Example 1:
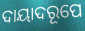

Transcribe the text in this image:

ଦାୟାଦରୂପେ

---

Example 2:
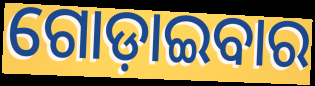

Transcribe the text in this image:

ଗୋଡ଼ାଇବାର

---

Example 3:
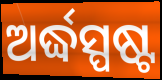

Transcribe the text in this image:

ଅର୍ଦ୍ଧସ୍ପଷ୍ଟ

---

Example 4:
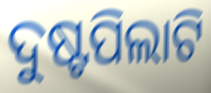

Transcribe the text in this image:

ଦୁଷ୍ଟପିଲାଟି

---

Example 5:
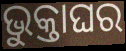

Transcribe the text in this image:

ଭୁକ୍ତାଘର